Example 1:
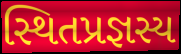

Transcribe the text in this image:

સ્થિતપ્રજ્ઞસ્ય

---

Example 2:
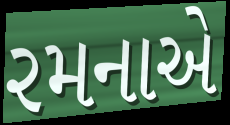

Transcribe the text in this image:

રમનાએ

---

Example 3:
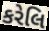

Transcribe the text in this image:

કરેલિ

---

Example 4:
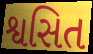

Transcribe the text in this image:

શ્વસિત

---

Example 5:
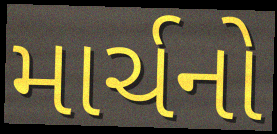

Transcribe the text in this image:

માર્ચનો